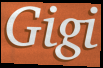
Gigi